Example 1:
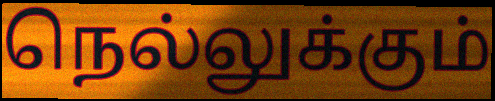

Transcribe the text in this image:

நெல்லுக்கும்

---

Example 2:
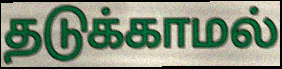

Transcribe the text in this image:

தடுக்காமல்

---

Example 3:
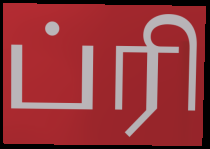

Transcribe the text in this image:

ப்ரி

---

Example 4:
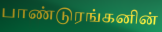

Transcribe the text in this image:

பாண்டுரங்கனின்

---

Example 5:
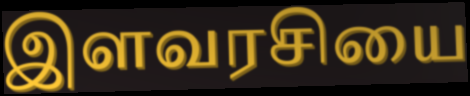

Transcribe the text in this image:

இளவரசியை